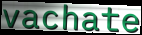
vachate